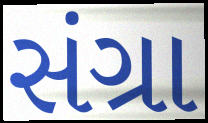
સંગ્રા